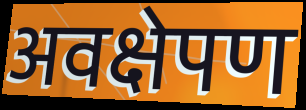
अवक्षेपण